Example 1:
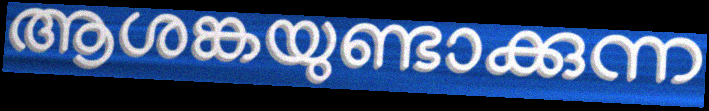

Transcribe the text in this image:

ആശങ്കയുണ്ടാക്കുന്ന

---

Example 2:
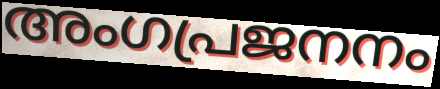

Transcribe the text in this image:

അംഗപ്രജനനം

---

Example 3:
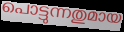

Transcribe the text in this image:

പൊട്ടുന്നതുമായ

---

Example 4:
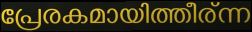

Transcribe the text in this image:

പ്രേരകമായിത്തീര്ന്ന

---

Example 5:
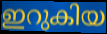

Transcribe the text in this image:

ഇറുകിയ